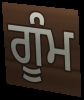
ਗੂੰਮ